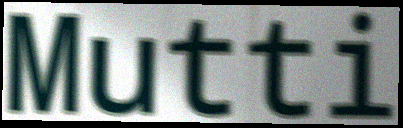
Mutti